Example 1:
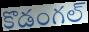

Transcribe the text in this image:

కొడంగల్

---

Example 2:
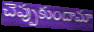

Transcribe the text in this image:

చెప్పుకుందామా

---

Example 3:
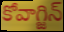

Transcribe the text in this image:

కోవాగ్జిన్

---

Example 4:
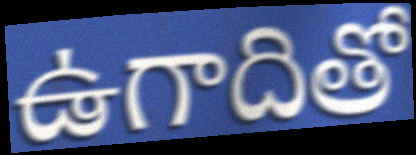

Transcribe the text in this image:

ఉగాదితో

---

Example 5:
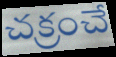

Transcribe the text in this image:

చక్రంచే